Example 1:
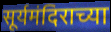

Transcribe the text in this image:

सूर्यमंदिराच्या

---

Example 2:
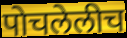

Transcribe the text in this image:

पोचलेलीच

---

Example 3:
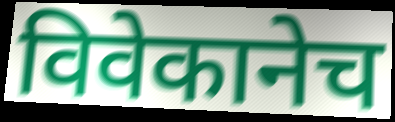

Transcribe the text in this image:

विवेकानेच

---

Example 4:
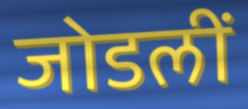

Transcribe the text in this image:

जोडलीं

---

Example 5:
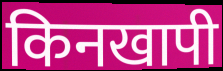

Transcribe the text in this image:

किनखापी